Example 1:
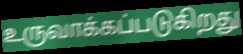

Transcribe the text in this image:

உருவாக்கப்படுகிறது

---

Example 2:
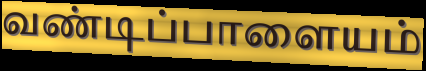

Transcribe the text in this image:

வண்டிப்பாளையம்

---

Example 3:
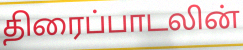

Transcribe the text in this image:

திரைப்பாடலின்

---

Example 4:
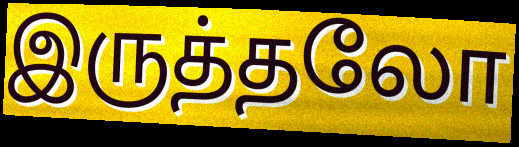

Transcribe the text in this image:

இருத்தலோ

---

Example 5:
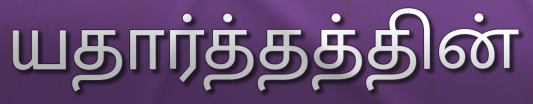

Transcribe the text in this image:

யதார்த்தத்தின்